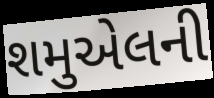
શમુએલની